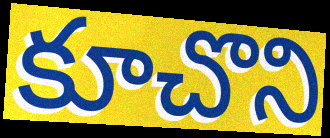
కూచొని